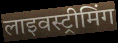
लाइवस्ट्रीमिंग